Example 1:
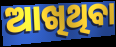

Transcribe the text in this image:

ଆଖିଥିବା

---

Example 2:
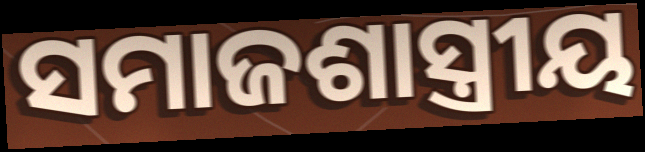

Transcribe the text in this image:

ସମାଜଶାସ୍ତ୍ରୀୟ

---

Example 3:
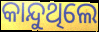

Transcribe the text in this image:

କାନ୍ଦୁଥିଲେ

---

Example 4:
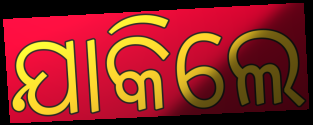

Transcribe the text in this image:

ଯାକିଲେ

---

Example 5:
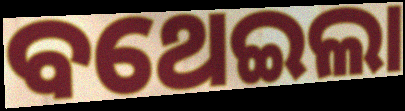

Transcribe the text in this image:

ବଥେଇଲା